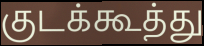
குடக்கூத்து